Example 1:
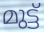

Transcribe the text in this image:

മുട്ട്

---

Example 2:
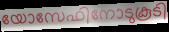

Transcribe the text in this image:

യോസേഫിനോടുകൂടി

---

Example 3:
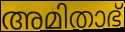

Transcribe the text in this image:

അമിതാഭ്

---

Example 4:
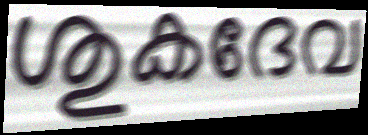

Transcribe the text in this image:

ശുകദേവ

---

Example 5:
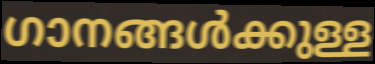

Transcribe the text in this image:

ഗാനങ്ങൾക്കുള്ള